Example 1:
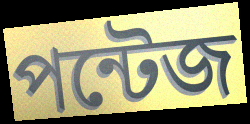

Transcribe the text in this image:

পন্টেজ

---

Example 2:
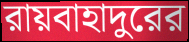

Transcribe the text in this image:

রায়বাহাদুরের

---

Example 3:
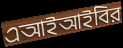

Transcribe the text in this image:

এআইআইবির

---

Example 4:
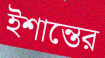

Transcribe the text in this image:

ইশান্তের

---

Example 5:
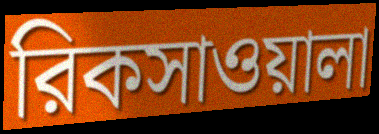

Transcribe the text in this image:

রিকসাওয়ালা